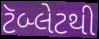
ટૅબ્લેટથી